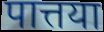
पात्तया